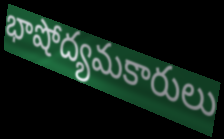
భాషోద్యమకారులు